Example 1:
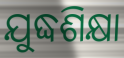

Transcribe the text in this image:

ଯୁଦ୍ଧଶିକ୍ଷା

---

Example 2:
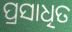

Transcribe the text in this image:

ପ୍ରସାଧିତ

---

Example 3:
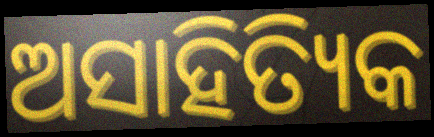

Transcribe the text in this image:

ଅସାହିତ୍ୟିକ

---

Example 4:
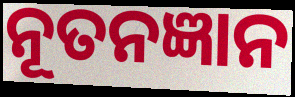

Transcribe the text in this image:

ନୂତନଜ୍ଞାନ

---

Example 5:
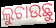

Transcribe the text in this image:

ଲୁଚାଉଛୁ